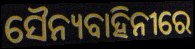
ସୈନ୍ୟବାହିନୀରେ